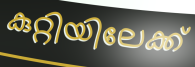
കുറ്റിയിലേക്ക്